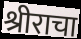
श्रीराचा